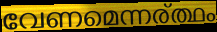
വേണമെന്നര്ത്ഥം